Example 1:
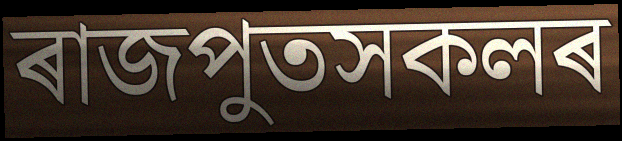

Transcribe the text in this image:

ৰাজপুতসকলৰ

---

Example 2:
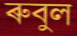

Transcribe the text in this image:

ৰুবুল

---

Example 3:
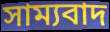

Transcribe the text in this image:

সাম্যবাদ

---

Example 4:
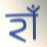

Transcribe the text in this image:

হাঁ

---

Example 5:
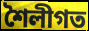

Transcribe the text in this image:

শৈলীগত